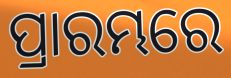
ପ୍ରାରମ୍ଭରେ